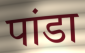
पांडा